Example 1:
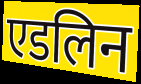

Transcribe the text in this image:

एडलिन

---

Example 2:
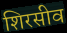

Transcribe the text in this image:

शिरसीव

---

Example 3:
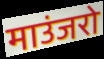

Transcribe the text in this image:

माउंजरो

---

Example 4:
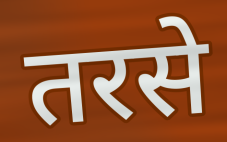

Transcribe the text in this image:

तरसे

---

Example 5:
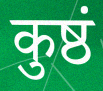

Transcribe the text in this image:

कुष्ठं